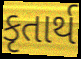
કૃતાર્થ